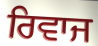
ਰਿਵਾਜ